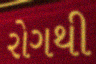
રોગથી